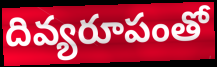
దివ్యరూపంతో